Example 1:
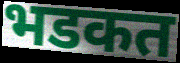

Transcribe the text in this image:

भडकत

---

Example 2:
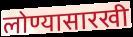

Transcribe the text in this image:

लोण्यासारखी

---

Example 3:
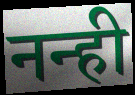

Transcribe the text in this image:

नन्ही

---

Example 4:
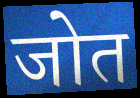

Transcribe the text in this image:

जोत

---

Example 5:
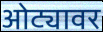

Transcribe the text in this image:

ओट्यावर